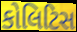
કોલિટિસ